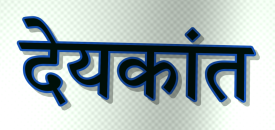
देयकांत